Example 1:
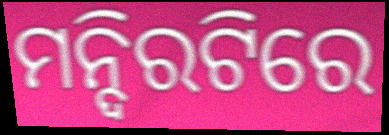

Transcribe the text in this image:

ମନ୍ଦିରଟିରେ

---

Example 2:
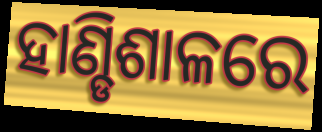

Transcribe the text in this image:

ହାଣ୍ଡିଶାଳରେ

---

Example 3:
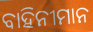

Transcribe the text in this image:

ବାହିନୀମାନ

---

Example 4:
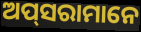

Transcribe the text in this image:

ଅପ୍‌ସରାମାନେ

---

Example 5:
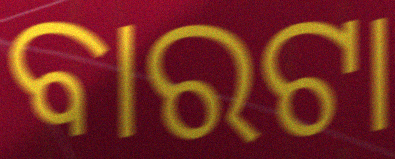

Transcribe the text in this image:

ବାରଟା